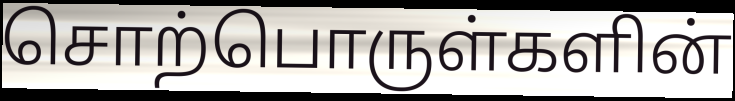
சொற்பொருள்களின்